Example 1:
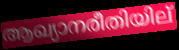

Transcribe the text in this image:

ആഖ്യാനരീതിയില്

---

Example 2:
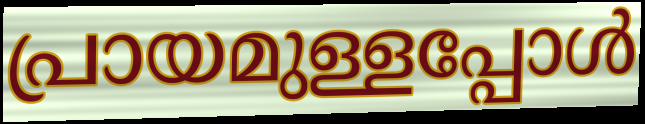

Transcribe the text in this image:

പ്രായമുള്ളപ്പോൾ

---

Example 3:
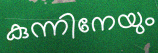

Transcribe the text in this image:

കുന്നിനേയും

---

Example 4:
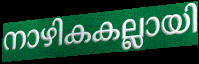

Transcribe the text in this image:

നാഴികകല്ലായി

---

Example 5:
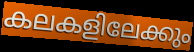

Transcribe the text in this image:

കലകളിലേക്കും